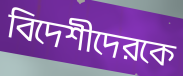
বিদেশীদেরকে